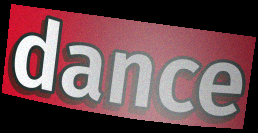
dance